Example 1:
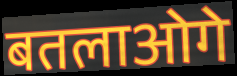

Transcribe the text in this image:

बतलाओगे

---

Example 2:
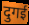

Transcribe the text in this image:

दुगई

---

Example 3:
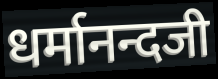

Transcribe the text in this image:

धर्मानन्दजी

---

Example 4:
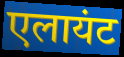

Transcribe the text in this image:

एलायंट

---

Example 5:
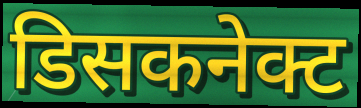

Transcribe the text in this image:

डिसकनेक्ट